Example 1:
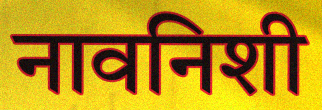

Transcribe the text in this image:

नावनिशी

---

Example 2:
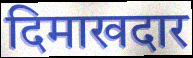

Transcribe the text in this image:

दिमाखदार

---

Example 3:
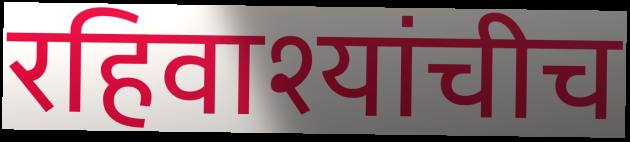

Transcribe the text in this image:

रहिवाश्यांचीच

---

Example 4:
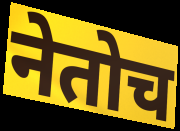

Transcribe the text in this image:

नेतोच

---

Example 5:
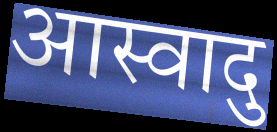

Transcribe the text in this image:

आस्वादु